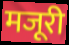
मजूरी